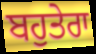
ਬਹੁਤੇਰਾ